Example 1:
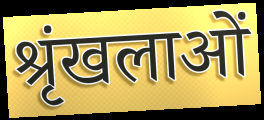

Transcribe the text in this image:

श्रृंखलाओं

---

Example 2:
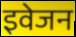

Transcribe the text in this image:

इवेजन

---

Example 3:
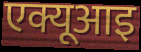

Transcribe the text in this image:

एक्यूआइ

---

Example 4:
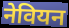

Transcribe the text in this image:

नेवियन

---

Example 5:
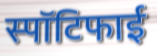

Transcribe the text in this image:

स्पॉटिफाई